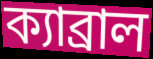
ক্যাব্রাল